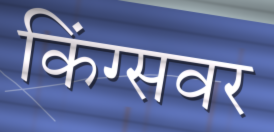
किंग्सवर